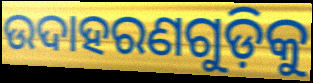
ଉଦାହରଣଗୁଡ଼ିକୁ